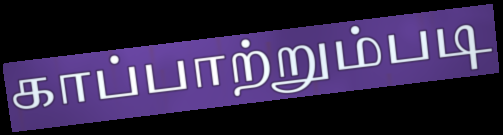
காப்பாற்றும்படி